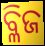
ବ୍ଳିଜ